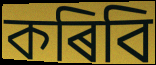
কৰিবি